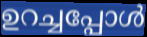
ഉറച്ചപ്പോൾ